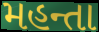
મહન્તા